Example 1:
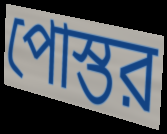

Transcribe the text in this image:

পোস্তর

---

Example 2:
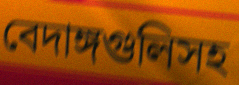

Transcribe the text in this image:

বেদাঙ্গগুলিসহ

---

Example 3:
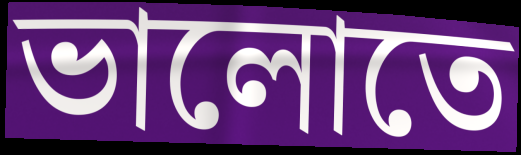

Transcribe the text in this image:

ভালোতে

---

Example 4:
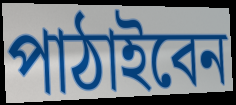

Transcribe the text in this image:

পাঠাইবেন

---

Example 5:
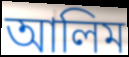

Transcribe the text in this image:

আলিম